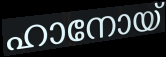
ഹാനോയ്